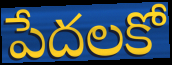
పేదలకో